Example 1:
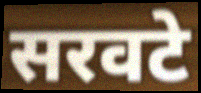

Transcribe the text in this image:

सरवटे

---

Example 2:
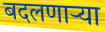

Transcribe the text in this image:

बदलणार्‍या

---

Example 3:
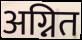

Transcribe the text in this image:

अग्नित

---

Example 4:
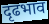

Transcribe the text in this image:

दृढभाव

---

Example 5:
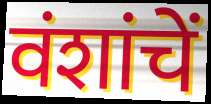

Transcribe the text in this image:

वंशांचें